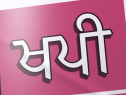
ਖਪੀ